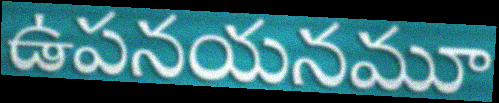
ఉపనయనమూ